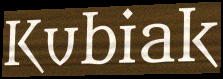
Kubiak